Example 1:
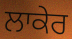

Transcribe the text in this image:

ਲਾਕੇਰ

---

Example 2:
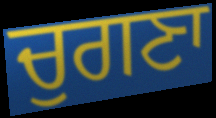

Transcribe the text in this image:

ਚੁਗਣਾ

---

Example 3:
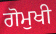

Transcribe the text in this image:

ਗੋਮੁਖੀ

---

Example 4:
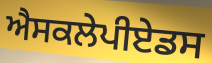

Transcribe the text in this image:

ਐਸਕਲੇਪੀਏਡਸ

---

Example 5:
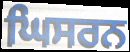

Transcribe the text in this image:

ਘਿਸਰਨ